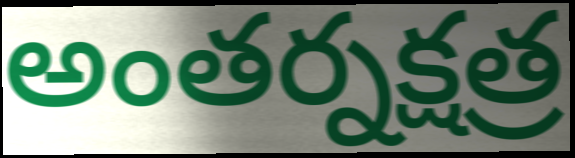
అంతర్నక్షత్ర